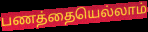
பணத்தையெல்லாம்